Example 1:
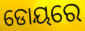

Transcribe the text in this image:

ଡୋୟରେ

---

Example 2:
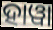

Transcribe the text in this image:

ହାୱା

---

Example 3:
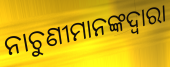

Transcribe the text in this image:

ନାଚୁଣୀମାନଙ୍କଦ୍ୱାରା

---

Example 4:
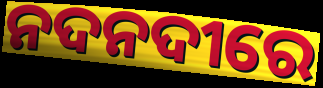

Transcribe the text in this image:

ନଦନଦୀରେ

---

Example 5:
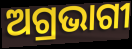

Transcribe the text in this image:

ଅଗ୍ରଭାଗୀ